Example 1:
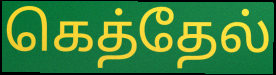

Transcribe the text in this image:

கெத்தேல்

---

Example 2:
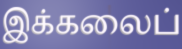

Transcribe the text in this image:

இக்கலைப்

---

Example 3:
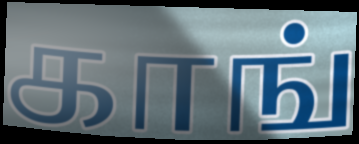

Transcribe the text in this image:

காங்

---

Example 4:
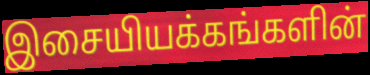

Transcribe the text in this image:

இசையியக்கங்களின்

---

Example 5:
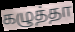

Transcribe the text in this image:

கழுத்தா